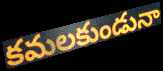
కమలకుండునా